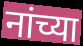
नांच्या